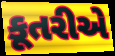
કૂતરીએ